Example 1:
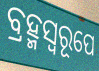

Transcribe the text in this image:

ବ୍ରହ୍ମସ୍ୱରୂପେ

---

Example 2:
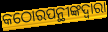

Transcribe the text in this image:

କଠୋରପନ୍ଥୀଙ୍କଦ୍ୱାରା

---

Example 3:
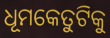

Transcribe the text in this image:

ଧୂମକେତୁଟିକୁ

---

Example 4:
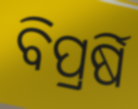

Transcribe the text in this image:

ବିପ୍ରର୍ଷି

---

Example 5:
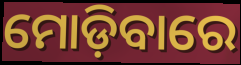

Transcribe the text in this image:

ମୋଡ଼ିବାରେ